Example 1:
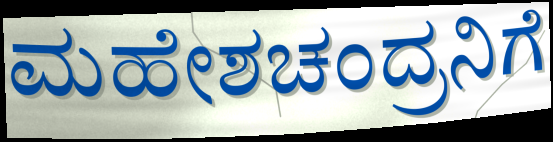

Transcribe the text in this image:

ಮಹೇಶಚಂದ್ರನಿಗೆ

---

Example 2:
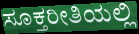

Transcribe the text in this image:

ಸೂಕ್ತರೀತಿಯಲ್ಲಿ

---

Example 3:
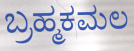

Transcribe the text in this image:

ಬ್ರಹ್ಮಕಮಲ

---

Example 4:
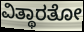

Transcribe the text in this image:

ವಿತ್ಥಾರತೋ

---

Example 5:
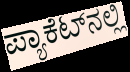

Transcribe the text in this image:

ಪ್ಯಾಕೆಟ್‌ನಲ್ಲಿ